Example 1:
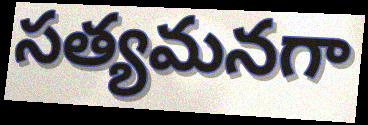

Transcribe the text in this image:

సత్యమనగా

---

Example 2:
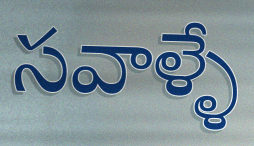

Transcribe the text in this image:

సవాళ్ళే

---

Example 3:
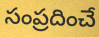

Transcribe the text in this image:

సంప్రదించే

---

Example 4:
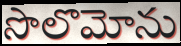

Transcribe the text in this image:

సొలొమోను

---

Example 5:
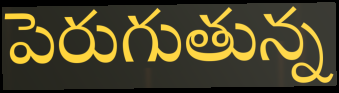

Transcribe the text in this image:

పెరుగుతున్న